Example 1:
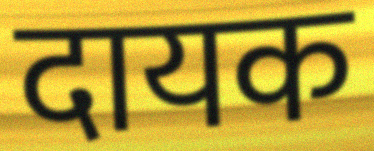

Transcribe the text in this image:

दायक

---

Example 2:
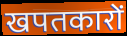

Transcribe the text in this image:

खपतकारों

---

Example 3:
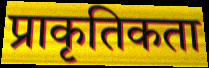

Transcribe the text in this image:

प्राकृतिकता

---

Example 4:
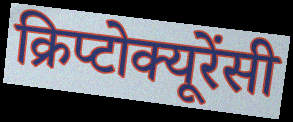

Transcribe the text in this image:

क्रिप्टोक्यूरेंसी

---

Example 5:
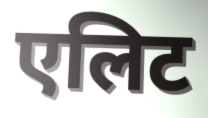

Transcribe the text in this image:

एलिट